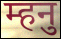
म्हनु